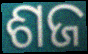
ଶଜ